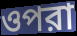
ওপরা